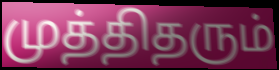
முத்திதரும்